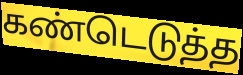
கண்டெடுத்த